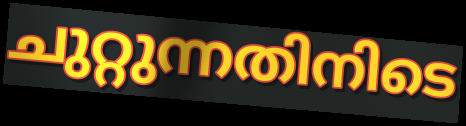
ചുറ്റുന്നതിനിടെ